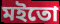
মইতো